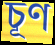
চূণ